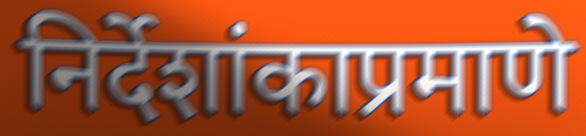
निर्देशांकाप्रमाणे